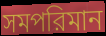
সমপরিমান